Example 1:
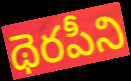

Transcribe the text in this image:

థెరపీని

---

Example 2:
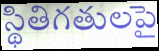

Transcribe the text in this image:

స్థితిగతులపై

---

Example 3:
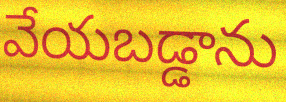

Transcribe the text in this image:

వేయబడ్డాను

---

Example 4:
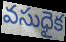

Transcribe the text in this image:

వసుధైక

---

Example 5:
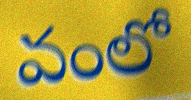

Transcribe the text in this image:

వంలో